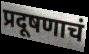
प्रदूषणाचं